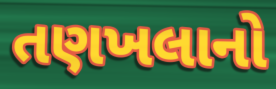
તણખલાનો